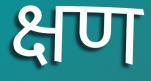
क्षण